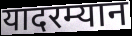
यादरम्यान